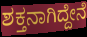
ಶಕ್ತನಾಗಿದ್ದೇನೆ